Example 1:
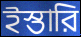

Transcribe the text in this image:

ইস্তারি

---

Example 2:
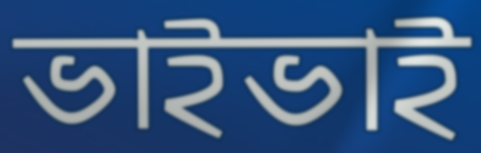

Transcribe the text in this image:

ভাইভাই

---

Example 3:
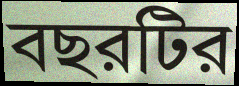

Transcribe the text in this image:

বছরটির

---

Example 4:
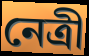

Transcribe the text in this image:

নেত্রী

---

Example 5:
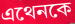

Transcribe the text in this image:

এথেনকে